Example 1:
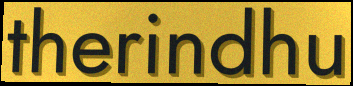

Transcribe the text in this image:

therindhu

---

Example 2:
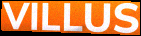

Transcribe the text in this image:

VILLUS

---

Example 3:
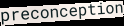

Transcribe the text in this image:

preconception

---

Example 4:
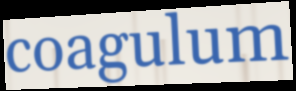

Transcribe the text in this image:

coagulum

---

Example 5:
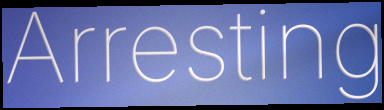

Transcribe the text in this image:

Arresting